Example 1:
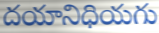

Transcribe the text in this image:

దయానిధియగు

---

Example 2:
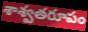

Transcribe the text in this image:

శాశ్వతరూపం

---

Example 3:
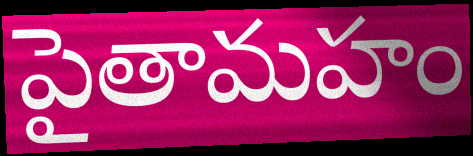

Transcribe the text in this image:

పైతామహం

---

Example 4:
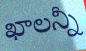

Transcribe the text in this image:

ఖాలన్నీ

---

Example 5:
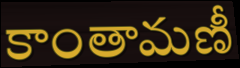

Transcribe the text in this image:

కాంతామణీ